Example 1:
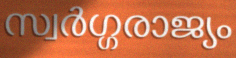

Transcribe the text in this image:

സ്വർഗ്ഗരാജ്യം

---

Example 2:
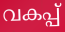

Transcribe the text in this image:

വകപ്പ്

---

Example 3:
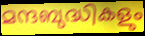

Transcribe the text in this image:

മന്ദബുദ്ധികളും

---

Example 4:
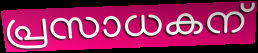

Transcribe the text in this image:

പ്രസാധകന്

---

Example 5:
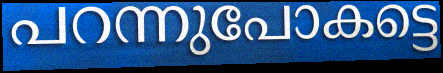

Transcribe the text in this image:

പറന്നുപോകട്ടെ